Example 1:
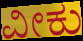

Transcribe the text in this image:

ವೀಕು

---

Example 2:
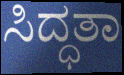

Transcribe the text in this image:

ಸಿದ್ಧತಾ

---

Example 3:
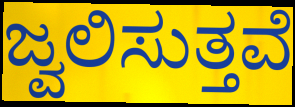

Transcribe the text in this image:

ಜ್ವಲಿಸುತ್ತವೆ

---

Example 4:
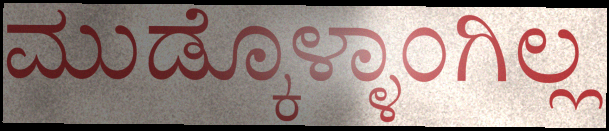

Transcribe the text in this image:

ಮುಡ್ಕೊಳ್ಳಾಂಗಿಲ್ಲ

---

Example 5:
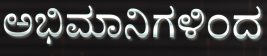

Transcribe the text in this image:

ಅಭಿಮಾನಿಗಳಿಂದ